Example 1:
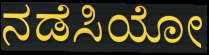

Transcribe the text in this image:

ನಡೆಸಿಯೋ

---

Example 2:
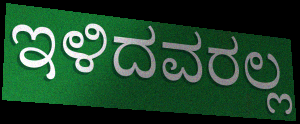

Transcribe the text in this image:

ಇಳಿದವರಲ್ಲ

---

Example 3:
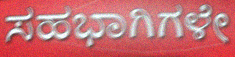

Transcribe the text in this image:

ಸಹಭಾಗಿಗಳೇ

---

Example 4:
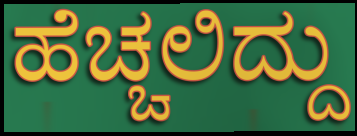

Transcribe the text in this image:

ಹೆಚ್ಚಲಿದ್ದು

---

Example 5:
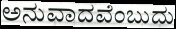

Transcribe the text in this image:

ಅನುವಾದವೆಂಬುದು